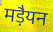
मड़ैयन